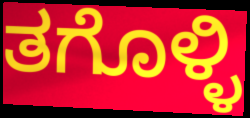
ತಗೊಳ್ಳಿ